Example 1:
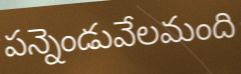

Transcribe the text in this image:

పన్నెండువేలమంది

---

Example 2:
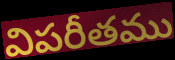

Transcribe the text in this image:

విపరీతము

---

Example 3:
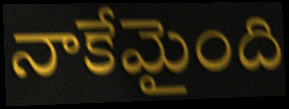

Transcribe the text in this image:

నాకేమైంది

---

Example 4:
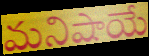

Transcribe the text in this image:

మనిషాయే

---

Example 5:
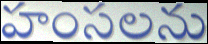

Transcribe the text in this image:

హంసలను